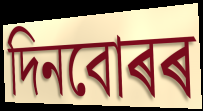
দিনবোৰৰ